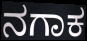
ನಗಾಕ